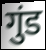
गुंड